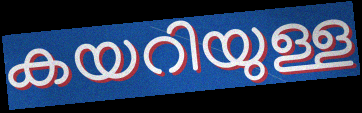
കയറിയുള്ള